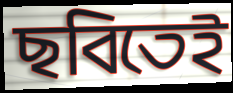
ছবিতেই